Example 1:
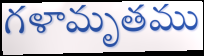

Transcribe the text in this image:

గళామృతము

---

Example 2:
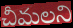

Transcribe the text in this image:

చీమలని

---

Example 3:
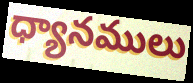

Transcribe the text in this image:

ధ్యానములు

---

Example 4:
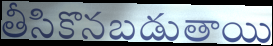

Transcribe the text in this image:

తీసికొనబడుతాయి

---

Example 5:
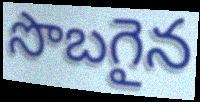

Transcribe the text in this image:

సొబగైన